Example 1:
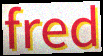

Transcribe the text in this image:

fred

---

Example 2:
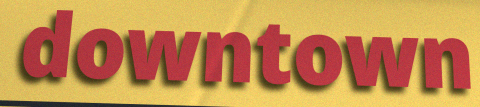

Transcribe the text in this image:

downtown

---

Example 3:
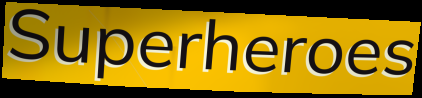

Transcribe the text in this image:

Superheroes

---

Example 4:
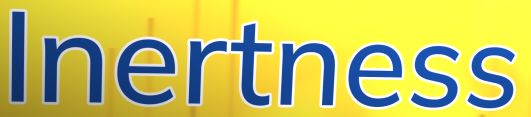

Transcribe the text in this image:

Inertness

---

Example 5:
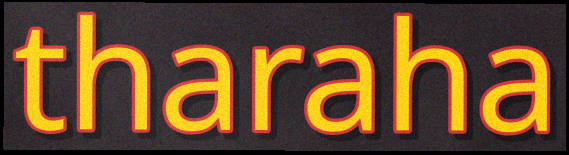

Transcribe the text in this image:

tharaha